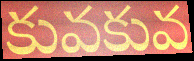
కువకువ